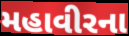
મહાવીરના